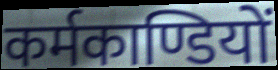
कर्मकाण्डियों